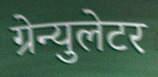
ग्रेन्युलेटर